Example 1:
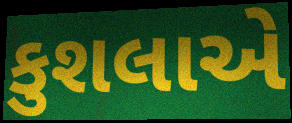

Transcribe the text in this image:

કુશલાએ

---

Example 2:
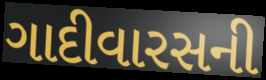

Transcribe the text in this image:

ગાદીવારસની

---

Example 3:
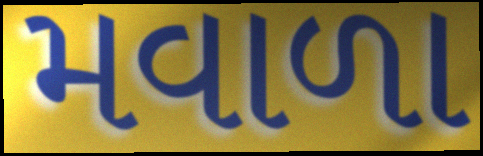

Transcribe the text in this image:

મવાળા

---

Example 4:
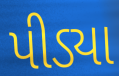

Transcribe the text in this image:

પીડ્યા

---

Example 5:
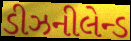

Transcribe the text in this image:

ડીઝનીલેન્ડ